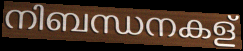
നിബന്ധനകള്